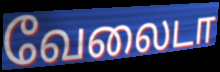
வேலைடா